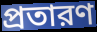
প্রতারণ